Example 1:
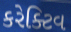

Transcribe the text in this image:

કરેક્ટિવ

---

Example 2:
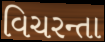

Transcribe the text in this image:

વિચરન્તા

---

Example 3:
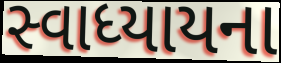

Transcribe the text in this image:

સ્વાધ્યાયના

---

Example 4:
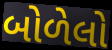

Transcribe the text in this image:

બોળેલો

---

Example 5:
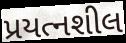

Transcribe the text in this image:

પ્રયત્નશીલ